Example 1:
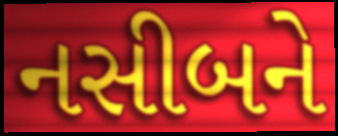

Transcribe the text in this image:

નસીબને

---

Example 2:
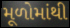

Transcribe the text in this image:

મૂળોમાંથી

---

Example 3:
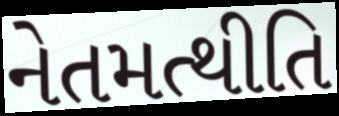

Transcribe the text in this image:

નેતમત્થીતિ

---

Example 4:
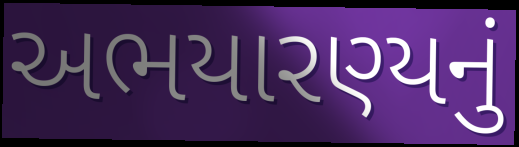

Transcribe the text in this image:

અભયારણ્યનું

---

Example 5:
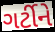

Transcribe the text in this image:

ગર્ટીને